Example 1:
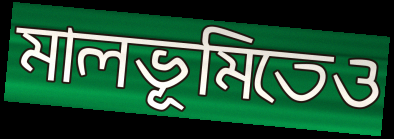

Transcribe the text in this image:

মালভূমিতেও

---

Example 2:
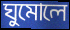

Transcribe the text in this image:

ঘুমোলে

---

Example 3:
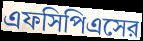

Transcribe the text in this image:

এফসিপিএসের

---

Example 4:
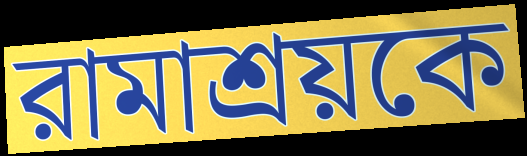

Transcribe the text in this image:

রামাশ্রয়কে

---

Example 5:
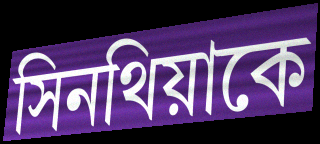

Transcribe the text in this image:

সিনথিয়াকে